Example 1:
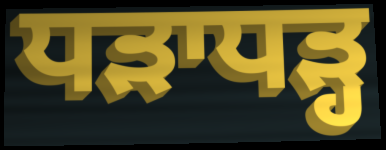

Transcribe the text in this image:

ਧੜਾਧੜ੍ਹ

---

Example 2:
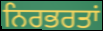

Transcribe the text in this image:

ਨਿਰਭਰਤਾਂ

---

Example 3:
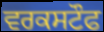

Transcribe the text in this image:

ਵਰਕਸਟੌਫ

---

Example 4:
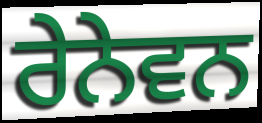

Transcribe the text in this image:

ਰੇਨੇਵਨ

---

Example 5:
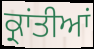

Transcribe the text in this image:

ਕ੍ਰਾਂਤੀਆਂ